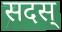
सदस्